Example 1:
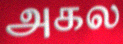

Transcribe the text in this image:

அகல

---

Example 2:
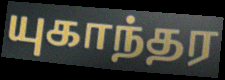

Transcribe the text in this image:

யுகாந்தர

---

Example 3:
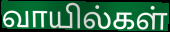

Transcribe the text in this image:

வாயில்கள்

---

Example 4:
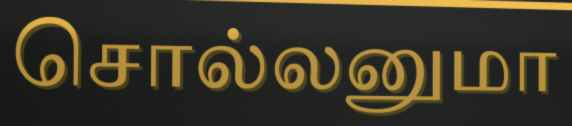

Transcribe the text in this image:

சொல்லனுமா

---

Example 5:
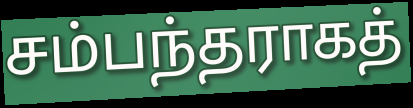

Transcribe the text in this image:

சம்பந்தராகத்